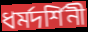
ধর্মদর্শিনী